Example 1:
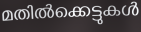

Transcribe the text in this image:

മതിൽക്കെട്ടുകൾ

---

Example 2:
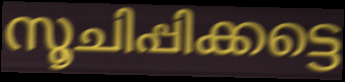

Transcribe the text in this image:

സൂചിപ്പിക്കട്ടെ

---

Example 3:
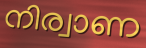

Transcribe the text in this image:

നിര്വാണ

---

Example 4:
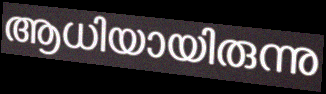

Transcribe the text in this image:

ആധിയായിരുന്നു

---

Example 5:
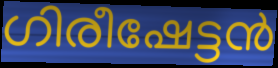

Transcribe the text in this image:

ഗിരീഷേട്ടൻ